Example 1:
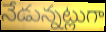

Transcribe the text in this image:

నేడున్నట్లుగా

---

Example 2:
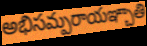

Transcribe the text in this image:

అభిసమ్పరాయఞ్చాతి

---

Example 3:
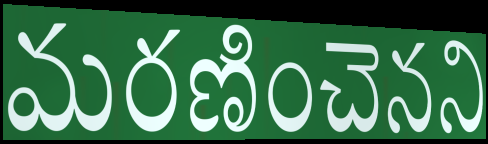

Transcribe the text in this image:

మరణించెనని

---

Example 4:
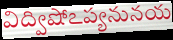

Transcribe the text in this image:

విద్విషోఽప్యనునయ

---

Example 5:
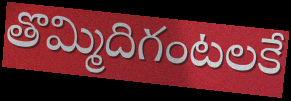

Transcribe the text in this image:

తొమ్మిదిగంటలకే